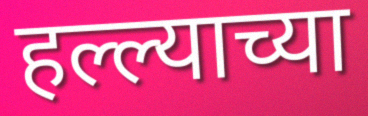
हल्ल्याच्या